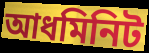
আধমিনিট